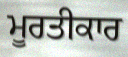
ਮੂਰਤੀਕਾਰ